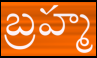
బ్రహ్మ